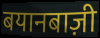
बयानबाज़ी